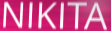
NIKITA